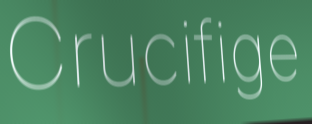
Crucifige